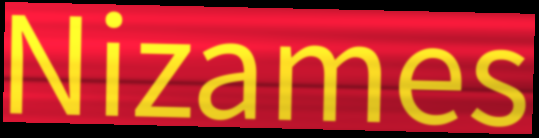
Nizames